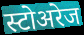
स्टोअरेज